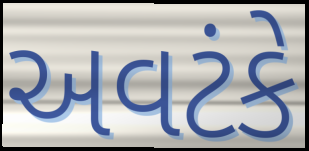
અવટંકે